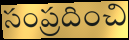
సంప్రదించి